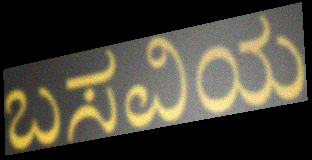
ಬಸವಿಯ